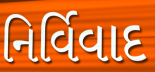
નિર્વિવાદ